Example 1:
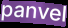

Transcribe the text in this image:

panvel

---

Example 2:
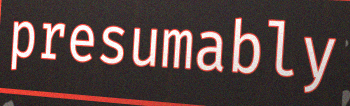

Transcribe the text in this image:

presumably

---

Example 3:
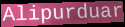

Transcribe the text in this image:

Alipurduar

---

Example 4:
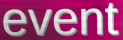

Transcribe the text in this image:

event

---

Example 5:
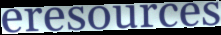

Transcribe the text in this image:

eresources